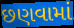
છણવામાં